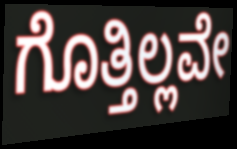
ಗೊತ್ತಿಲ್ಲವೇ